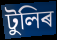
টুলিৰ